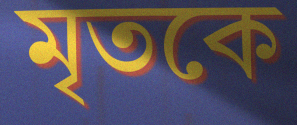
মৃতকে